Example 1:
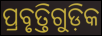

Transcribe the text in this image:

ପ୍ରବୃତ୍ତିଗୁଡ଼ିକ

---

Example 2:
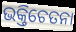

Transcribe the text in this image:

ଭକ୍ତିଚେତନା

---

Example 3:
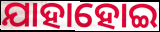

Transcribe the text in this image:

ଯାହାହୋଇ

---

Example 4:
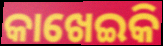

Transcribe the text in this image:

କାଖେଇକି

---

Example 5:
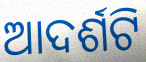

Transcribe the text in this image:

ଆଦର୍ଶଟି